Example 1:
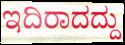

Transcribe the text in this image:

ಇದಿರಾದದ್ದು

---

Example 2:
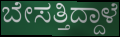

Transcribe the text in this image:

ಬೇಸತ್ತಿದ್ದಾಳೆ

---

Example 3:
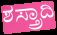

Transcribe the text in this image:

ಶಸ್ತ್ರಾದಿ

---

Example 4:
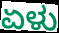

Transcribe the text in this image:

ಏಳು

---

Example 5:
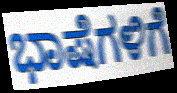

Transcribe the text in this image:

ಭಾಷೆಗಳಿಗೆ